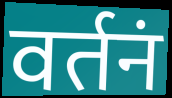
वर्तनं